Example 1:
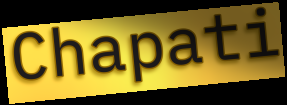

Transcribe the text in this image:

Chapati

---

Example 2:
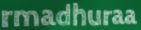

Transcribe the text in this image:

rmadhuraa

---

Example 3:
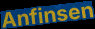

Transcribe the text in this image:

Anfinsen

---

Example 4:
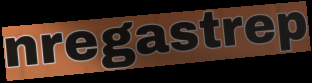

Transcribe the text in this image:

nregastrep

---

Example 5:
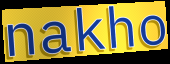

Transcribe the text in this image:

nakho